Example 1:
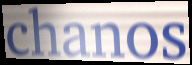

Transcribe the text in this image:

chanos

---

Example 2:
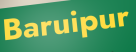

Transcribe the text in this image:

Baruipur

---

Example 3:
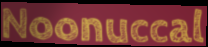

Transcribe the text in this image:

Noonuccal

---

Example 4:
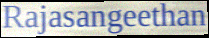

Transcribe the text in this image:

Rajasangeethan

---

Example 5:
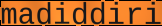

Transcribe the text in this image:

madiddiri